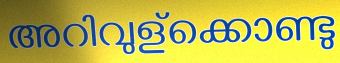
അറിവുള്ക്കൊണ്ടു